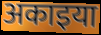
अकाइया